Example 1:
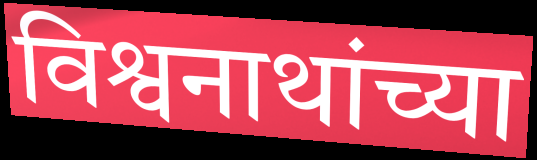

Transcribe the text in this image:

विश्वनाथांच्या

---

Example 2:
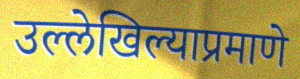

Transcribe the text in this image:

उल्लेखिल्याप्रमाणे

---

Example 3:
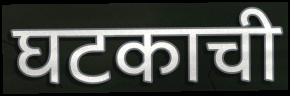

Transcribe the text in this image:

घटकाची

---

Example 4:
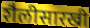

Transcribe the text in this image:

शैलीसारखी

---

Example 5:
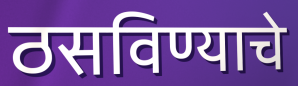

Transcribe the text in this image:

ठसविण्याचे